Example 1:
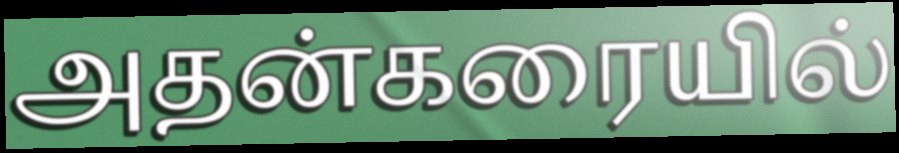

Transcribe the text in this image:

அதன்கரையில்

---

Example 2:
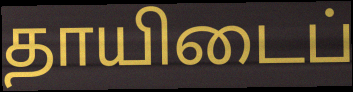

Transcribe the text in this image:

தாயிடைப்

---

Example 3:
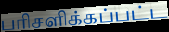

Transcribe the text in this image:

பரிசளிக்கப்பட்ட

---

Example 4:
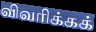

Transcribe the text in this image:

விவரிக்கக்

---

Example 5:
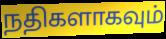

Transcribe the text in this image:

நதிகளாகவும்